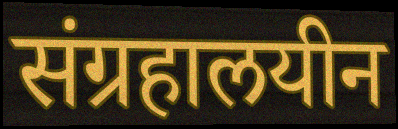
संग्रहालयीन